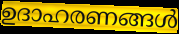
ഉദാഹരണങ്ങൾ